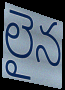
లైన